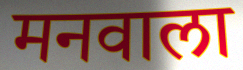
मनवाला